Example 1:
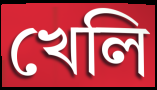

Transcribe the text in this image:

খেলি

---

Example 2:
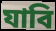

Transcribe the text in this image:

যাবি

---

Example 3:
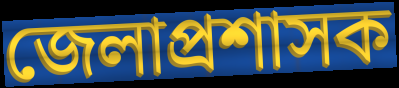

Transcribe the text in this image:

জেলাপ্রশাসক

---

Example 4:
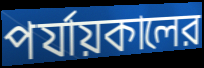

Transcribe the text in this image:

পর্যায়কালের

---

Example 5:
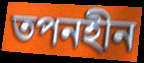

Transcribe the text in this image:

তপনহীন